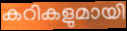
കറികളുമായി